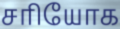
சரியோக